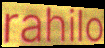
rahilo